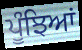
ਪੂੰਝਿਆਂ